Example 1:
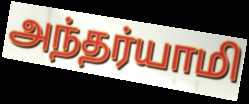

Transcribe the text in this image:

அந்தர்யாமி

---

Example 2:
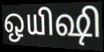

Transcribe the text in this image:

ஒயிஷி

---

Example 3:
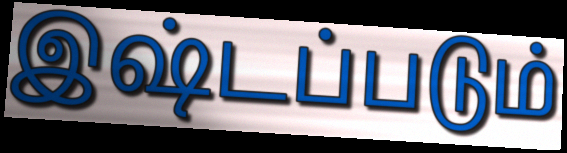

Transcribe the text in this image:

இஷ்டப்படும்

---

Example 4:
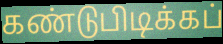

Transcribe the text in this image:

கண்டுபிடிக்கப்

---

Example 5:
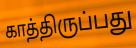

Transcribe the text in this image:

காத்திருப்பது